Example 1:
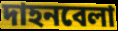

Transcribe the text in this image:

দাহনবেলা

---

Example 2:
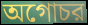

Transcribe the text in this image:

অগোচর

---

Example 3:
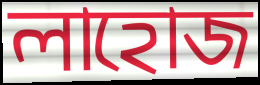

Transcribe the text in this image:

লাহোজ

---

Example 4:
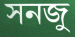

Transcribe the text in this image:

সনজু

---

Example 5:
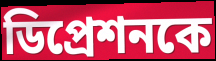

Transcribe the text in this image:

ডিপ্রেশনকে